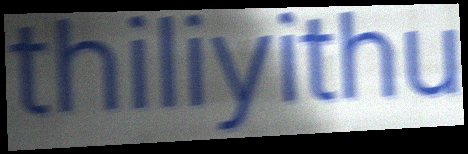
thiliyithu